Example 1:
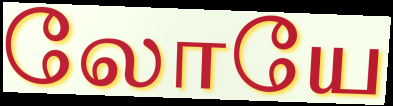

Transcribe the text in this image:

லோயே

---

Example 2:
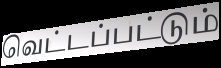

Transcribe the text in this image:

வெட்டப்பட்டும்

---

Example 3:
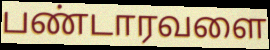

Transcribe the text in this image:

பண்டாரவளை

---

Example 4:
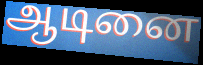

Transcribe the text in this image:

ஆடினை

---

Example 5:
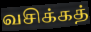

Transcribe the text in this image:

வசிக்கத்